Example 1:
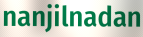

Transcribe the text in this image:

nanjilnadan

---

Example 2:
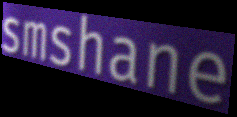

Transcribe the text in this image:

smshane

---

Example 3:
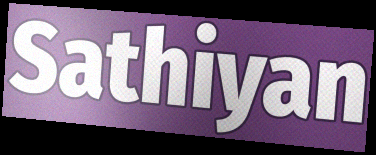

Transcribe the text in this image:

Sathiyan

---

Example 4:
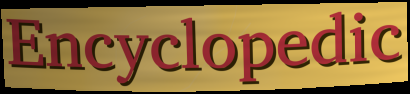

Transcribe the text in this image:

Encyclopedic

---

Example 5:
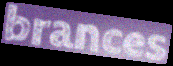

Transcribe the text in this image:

brances